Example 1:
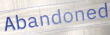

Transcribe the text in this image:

Abandoned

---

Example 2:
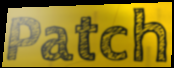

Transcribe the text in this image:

Patch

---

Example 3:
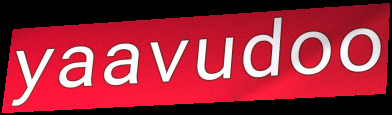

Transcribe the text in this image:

yaavudoo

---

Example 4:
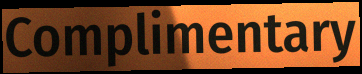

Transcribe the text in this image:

Complimentary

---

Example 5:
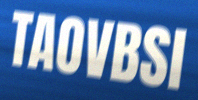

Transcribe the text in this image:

TAOVBSI